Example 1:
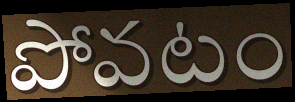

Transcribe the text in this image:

పోవటం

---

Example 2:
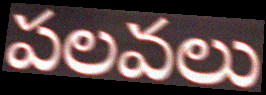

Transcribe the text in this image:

పలవలు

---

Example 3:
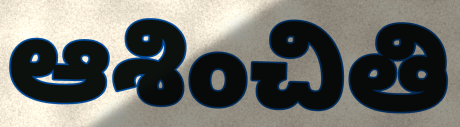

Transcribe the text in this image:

ఆశించితి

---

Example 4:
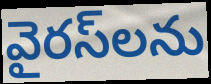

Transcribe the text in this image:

వైరస్‌లను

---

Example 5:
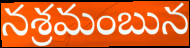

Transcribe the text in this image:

నశ్రమంబున